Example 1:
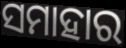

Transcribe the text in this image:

ସମାହାର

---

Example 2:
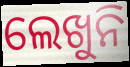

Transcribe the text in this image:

ଲେଖୁନି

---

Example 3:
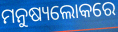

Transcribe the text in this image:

ମନୁଷ୍ୟଲୋକରେ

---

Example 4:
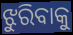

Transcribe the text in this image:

ଝୁରିବାକୁ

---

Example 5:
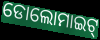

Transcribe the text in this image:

ଡୋଲୋମାଇଟ୍